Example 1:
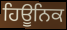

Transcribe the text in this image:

ਹਿਊਨਿਕ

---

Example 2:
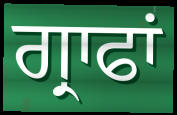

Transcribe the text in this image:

ਗ੍ਰਾਫਾਂ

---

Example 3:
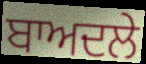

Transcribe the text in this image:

ਬਾਅਦਲੇ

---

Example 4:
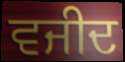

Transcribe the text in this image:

ਵਜੀਦ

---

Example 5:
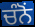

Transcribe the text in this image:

ਚੰਨੋਂ